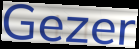
Gezer